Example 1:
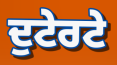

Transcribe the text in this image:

ਦੁਟੇਰਟੇ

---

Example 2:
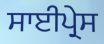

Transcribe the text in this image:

ਸਾਈਪ੍ਰੇਸ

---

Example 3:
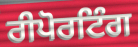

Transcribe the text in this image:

ਰੀਪੋਰਟਿੰਗ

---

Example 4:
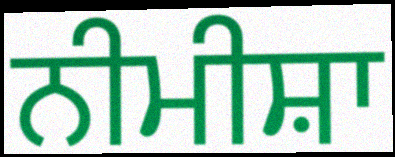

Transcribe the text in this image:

ਨੀਮੀਸ਼ਾ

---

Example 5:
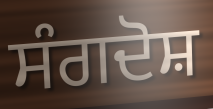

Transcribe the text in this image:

ਸੰਗਦੋਸ਼